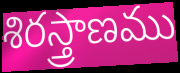
శిరస్త్రాణము